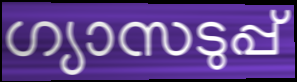
ഗ്യാസടുപ്പ്